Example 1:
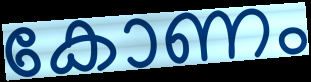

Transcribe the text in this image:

കോണം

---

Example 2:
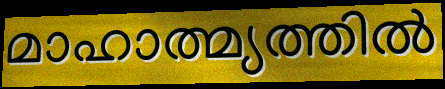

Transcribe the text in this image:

മാഹാത്മ്യത്തിൽ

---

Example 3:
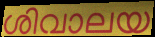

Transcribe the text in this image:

ശിവാലയ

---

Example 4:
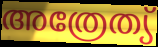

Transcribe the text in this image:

അത്രേത്യ്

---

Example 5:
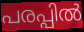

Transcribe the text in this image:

പരപ്പിൽ